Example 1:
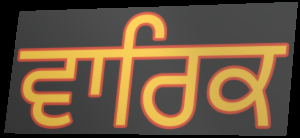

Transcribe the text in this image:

ਵਾਰਿਕ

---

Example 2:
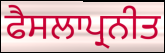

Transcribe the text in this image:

ਫੈਸਲਾਪ੍ਰਨੀਤ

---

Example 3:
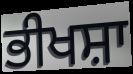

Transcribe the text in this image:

ਭੀਖਸ਼ਾ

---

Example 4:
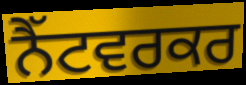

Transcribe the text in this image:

ਨੈੱਟਵਰਕਰ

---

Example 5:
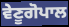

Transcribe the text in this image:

ਵੇਣੂਗੋਪਾਲ